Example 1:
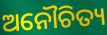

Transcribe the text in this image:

ଅନୌଚିତ୍ୟ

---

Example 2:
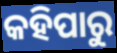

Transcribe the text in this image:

କହିପାରୁ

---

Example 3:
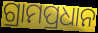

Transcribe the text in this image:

ଗ୍ରାମପ୍ରଧାନ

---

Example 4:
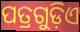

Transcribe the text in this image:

ପତ୍ରଗୁଡ଼ିଏ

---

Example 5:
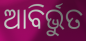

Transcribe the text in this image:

ଆବିର୍ଭୁତ